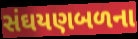
સંઘયણબળના